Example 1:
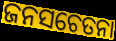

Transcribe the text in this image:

ଜନସଚେତନା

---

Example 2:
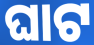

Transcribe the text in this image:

ଘାଟ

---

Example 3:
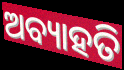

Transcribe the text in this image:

ଅବ୍ୟାହତି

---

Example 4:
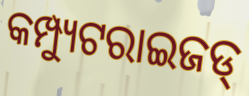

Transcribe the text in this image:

କମ୍ପ୍ୟୁଟରାଇଜଡ୍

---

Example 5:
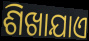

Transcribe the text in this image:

ଶିଖାଯାଏ